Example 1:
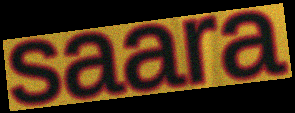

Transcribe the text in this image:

saara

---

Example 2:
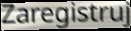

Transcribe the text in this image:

Zaregistruj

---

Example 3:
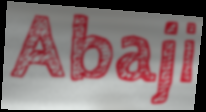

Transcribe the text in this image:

Abaji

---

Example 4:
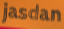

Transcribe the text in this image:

jasdan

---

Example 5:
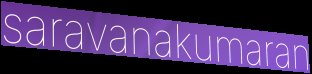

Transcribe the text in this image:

saravanakumaran